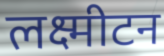
लक्ष्मीटन